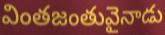
వింతజంతువైనాడు